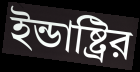
ইন্ডাষ্ট্রির